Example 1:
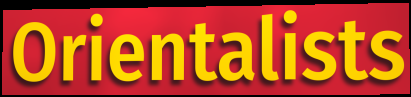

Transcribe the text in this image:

Orientalists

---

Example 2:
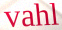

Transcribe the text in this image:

vahl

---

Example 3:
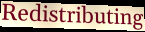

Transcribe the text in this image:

Redistributing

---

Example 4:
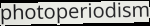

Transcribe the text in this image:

photoperiodism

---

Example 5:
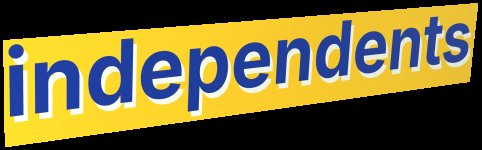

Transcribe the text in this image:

independents